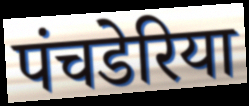
पंचडेरिया